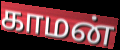
காமன்